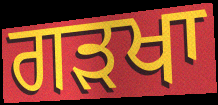
ਗੜਖਾ